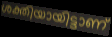
ശക്തിയായിട്ടാണ്